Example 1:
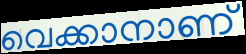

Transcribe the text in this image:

വെക്കാനാണ്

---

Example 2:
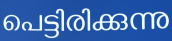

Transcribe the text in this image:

പെട്ടിരിക്കുന്നു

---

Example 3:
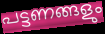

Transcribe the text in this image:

പട്ടണങ്ങളും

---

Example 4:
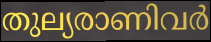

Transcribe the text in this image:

തുല്യരാണിവർ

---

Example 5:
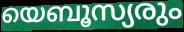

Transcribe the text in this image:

യെബൂസ്യരും